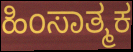
ಹಿಂಸಾತ್ಮಕ